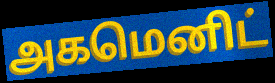
அகமெனிட்